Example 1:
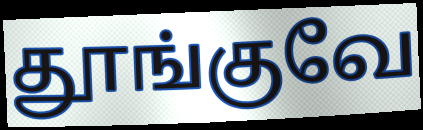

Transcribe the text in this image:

தூங்குவே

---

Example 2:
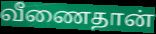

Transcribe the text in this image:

வீணைதான்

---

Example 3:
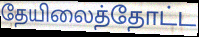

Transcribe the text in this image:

தேயிலைத்தோட்ட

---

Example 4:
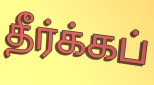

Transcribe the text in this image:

தீர்க்கப்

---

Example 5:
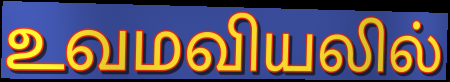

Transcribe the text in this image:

உவமவியலில்